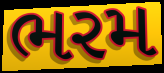
ભરમ